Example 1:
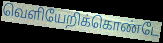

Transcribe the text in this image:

வெளியேறிக்கொண்டே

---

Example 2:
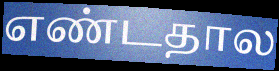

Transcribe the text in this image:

எண்டதால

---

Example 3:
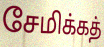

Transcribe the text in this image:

சேமிக்கத்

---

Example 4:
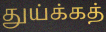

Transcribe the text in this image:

துய்க்கத்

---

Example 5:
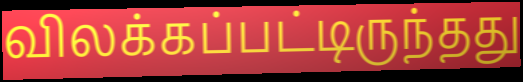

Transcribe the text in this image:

விலக்கப்பட்டிருந்தது